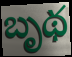
బృథ